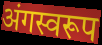
अंगस्वरूप